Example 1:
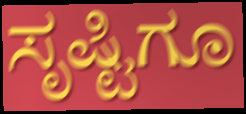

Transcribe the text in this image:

ಸೃಷ್ಟಿಗೂ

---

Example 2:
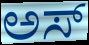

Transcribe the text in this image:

ಅಸ್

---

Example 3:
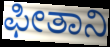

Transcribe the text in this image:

ಫೀತಾನಿ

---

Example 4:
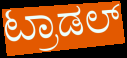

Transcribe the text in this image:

ಟ್ರಾಡಲ್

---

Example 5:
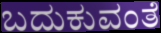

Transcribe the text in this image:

ಬದುಕುವಂತೆ